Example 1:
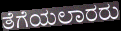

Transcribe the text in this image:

ತೆಗೆಯಲಾರರು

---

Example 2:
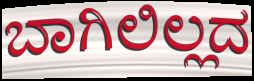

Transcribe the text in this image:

ಬಾಗಿಲಿಲ್ಲದ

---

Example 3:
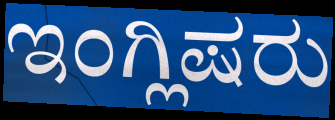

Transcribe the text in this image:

ಇಂಗ್ಲಿಷರು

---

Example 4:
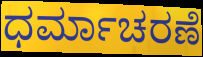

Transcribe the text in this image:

ಧರ್ಮಾಚರಣೆ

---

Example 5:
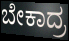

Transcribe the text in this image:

ಬೇಕಾದ್ರ